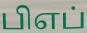
பிஎப்